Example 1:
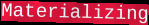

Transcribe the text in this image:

Materializing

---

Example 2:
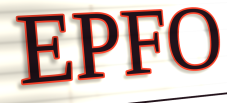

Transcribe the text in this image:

EPFO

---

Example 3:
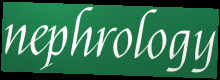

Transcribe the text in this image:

nephrology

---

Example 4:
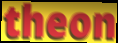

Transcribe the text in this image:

theon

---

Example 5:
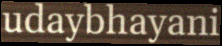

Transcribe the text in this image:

udaybhayani